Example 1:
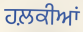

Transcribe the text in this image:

ਹਲ਼ਕੀਆਂ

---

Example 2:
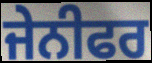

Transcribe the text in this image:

ਜੇਨੀਫਰ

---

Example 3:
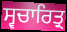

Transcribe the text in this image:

ਸ੍ਵਚਾਰਿਤ੍ਰ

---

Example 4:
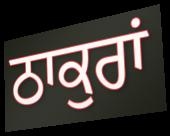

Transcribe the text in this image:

ਠਾਕੁਰਾਂ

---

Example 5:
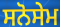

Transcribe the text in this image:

ਸਨੋਸੇਮ